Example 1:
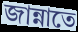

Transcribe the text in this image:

জান্নাতে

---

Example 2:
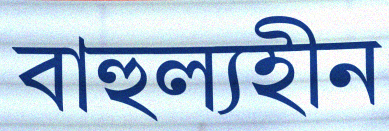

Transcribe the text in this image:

বাহুল্যহীন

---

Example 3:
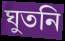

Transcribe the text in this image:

ঘুতনি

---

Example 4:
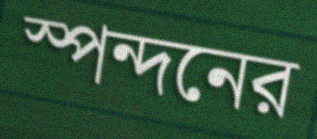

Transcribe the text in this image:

স্পন্দনের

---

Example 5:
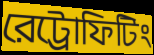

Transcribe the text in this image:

রেট্রোফিটিং